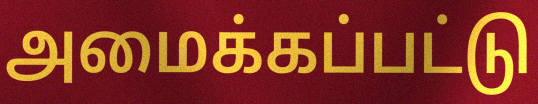
அமைக்கப்பட்டு